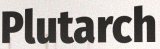
Plutarch